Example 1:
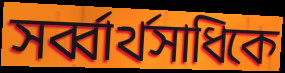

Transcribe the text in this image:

সর্ব্বার্থসাধিকে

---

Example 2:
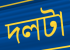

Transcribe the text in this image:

দলটা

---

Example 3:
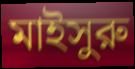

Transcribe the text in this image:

মাইসুরু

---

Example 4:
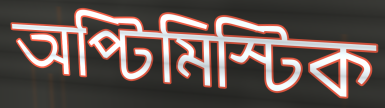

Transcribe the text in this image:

অপ্টিমিস্টিক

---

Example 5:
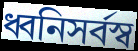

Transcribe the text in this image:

ধ্বনিসর্বস্ব